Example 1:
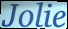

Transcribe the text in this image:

Jolie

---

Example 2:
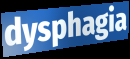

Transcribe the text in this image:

dysphagia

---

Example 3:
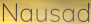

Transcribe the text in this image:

Nausad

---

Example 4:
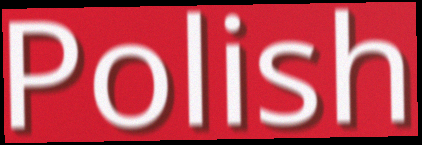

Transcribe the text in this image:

Polish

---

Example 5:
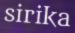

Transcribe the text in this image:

sirika